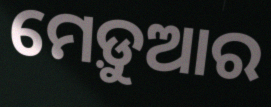
ମେଡ଼ୁଆର